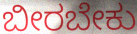
ಬೀರಬೇಕು